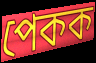
পেকক